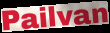
Pailvan